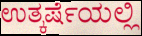
ಉತ್ಕರ್ಷೆಯಲ್ಲಿ